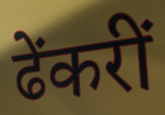
ढेंकरीं